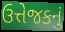
ઉત્તેજકનું